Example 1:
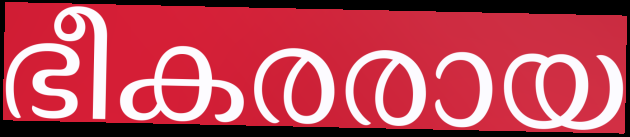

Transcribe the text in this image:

ഭീകരരായ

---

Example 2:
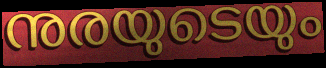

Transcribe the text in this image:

നുരയുടെയും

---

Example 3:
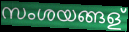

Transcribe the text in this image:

സംശയങ്ങള്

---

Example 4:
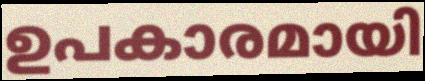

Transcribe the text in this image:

ഉപകാരമായി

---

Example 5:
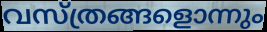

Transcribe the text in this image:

വസ്ത്രങ്ങളൊന്നും